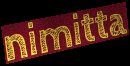
nimitta